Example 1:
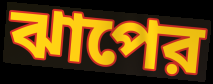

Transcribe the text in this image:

ঝাপের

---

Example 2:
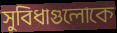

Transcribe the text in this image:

সুবিধাগুলোকে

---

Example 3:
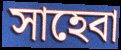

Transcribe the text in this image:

সাহেবা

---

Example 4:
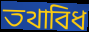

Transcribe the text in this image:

তথাবিধ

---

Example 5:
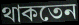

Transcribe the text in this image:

থাকতেন